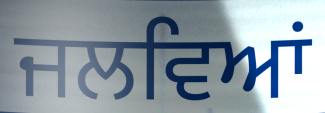
ਜਲਵਿਆਂ